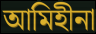
আমিহীনা